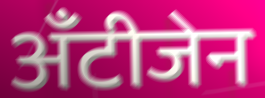
अँटीजेन